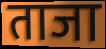
ताजा